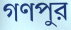
গণপুর